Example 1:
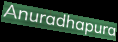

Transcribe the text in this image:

Anuradhapura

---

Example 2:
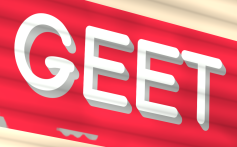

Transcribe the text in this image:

GEET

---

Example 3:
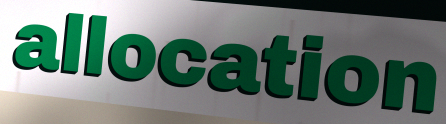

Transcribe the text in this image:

allocation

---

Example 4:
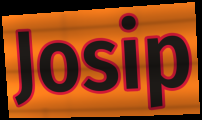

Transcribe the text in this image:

Josip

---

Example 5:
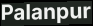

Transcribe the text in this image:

Palanpur